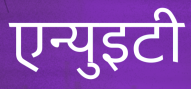
एन्युइटी